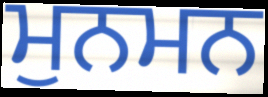
ਮੁਨਮਨ